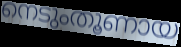
നെടുംതൂണായ